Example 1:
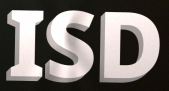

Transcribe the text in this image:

ISD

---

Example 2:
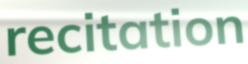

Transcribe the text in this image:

recitation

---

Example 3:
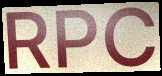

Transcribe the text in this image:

RPC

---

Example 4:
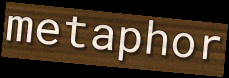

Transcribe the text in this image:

metaphor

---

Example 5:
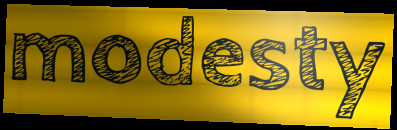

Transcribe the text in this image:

modesty